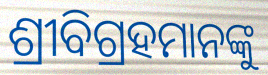
ଶ୍ରୀବିଗ୍ରହମାନଙ୍କୁ